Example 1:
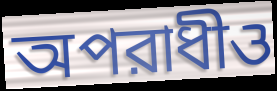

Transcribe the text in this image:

অপরাধীও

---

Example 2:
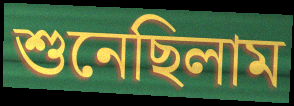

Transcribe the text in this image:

শুনেছিলাম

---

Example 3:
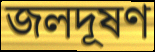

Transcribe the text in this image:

জলদূষণ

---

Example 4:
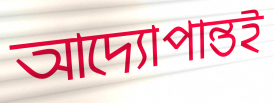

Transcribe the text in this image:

আদ্যোপান্তই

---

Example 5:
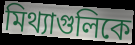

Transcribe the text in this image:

মিথ্যাগুলিকে